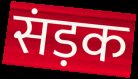
संड़क